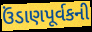
ઉંડાણપૂર્વકની